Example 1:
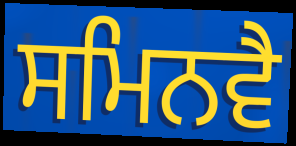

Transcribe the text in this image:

ਸਮਿਨਵੈ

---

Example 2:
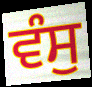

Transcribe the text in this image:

ਵੰਸੁ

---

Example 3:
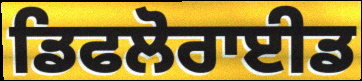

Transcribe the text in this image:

ਡਿਫਲੋਰਾਈਡ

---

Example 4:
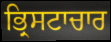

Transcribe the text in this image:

ਭ੍ਰਿਸਟਾਚਾਰ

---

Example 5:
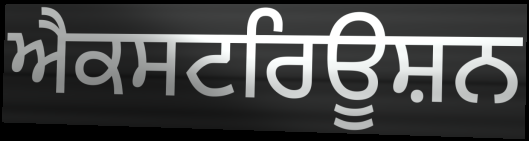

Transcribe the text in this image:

ਐਕਸਟਰਿਊਸ਼ਨ